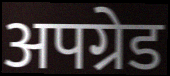
अपग्रेड